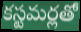
కస్టమర్లతో